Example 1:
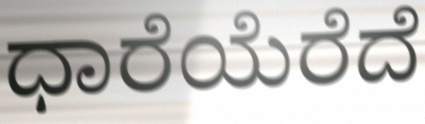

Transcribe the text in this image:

ಧಾರೆಯೆರೆದೆ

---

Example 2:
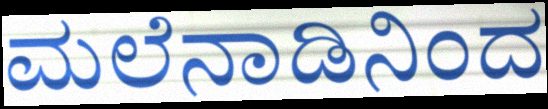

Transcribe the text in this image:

ಮಲೆನಾಡಿನಿಂದ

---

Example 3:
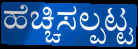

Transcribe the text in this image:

ಹೆಚ್ಚಿಸಲ್ಪಟ್ಟ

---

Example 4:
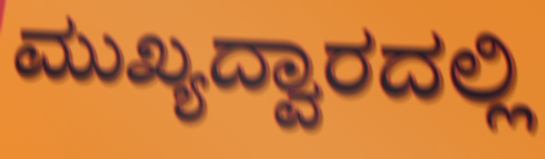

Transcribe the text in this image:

ಮುಖ್ಯದ್ವಾರದಲ್ಲಿ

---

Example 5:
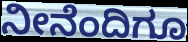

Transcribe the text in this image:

ನೀನೆಂದಿಗೂ